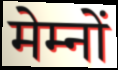
मेम्नों